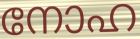
നോഹ